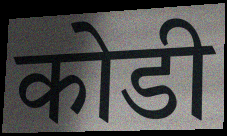
कोडी